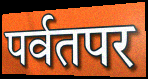
पर्वतपर